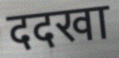
ददखा